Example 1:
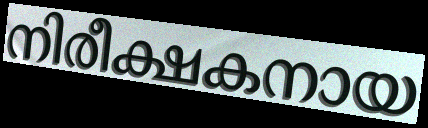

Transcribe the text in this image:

നിരീക്ഷകനായ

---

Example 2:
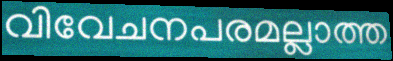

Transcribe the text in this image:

വിവേചനപരമല്ലാത്ത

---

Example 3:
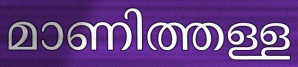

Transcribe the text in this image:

മാണിത്തള്ള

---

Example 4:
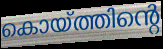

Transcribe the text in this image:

കൊയ്ത്തിന്റെ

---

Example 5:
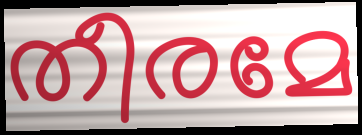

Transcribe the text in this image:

തീരമേ